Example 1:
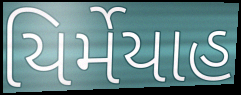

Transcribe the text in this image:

યિર્મેયાહ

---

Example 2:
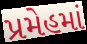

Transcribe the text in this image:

પ્રમેહમાં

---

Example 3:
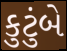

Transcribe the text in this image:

કુટુંબે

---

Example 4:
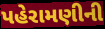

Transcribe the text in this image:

પહેરામણીની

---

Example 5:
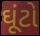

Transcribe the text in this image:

ઘૂંટો